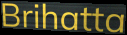
Brihatta